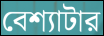
বেশ্যাটার